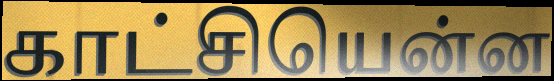
காட்சியென்ன